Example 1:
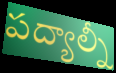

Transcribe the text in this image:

పద్యాల్నీ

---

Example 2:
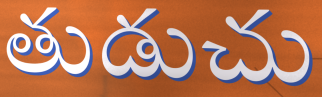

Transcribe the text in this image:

తుడుచు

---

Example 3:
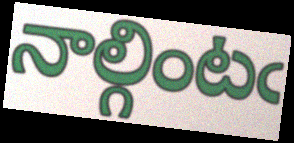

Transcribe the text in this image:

నాల్గింటఁ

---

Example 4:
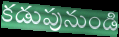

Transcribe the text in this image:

కడుపునుండి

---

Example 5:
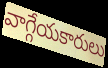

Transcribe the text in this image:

వాగ్గేయకారులు